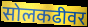
सोलकढीवर